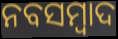
ନବସମ୍ବାଦ